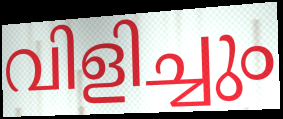
വിളിച്ചും